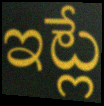
ఇట్లే